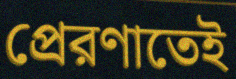
প্রেরণাতেই